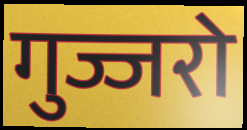
गुज्जरो